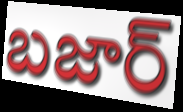
బజార్